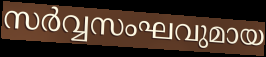
സർവ്വസംഘവുമായ